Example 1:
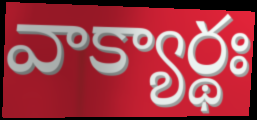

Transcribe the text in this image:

వాక్యార్థః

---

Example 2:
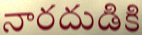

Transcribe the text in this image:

నారదుడికి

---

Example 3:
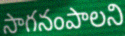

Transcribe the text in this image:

సాగనంపాలని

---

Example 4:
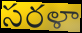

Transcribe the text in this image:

సరళా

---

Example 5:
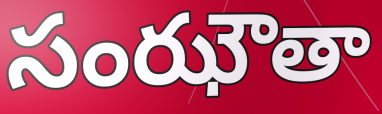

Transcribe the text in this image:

సంఝౌతా